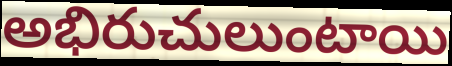
అభిరుచులుంటాయి